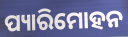
ପ୍ୟାରିମୋହନ